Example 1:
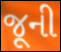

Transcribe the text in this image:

જૂની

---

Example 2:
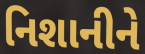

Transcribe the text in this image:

નિશાનીને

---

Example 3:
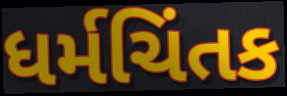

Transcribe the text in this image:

ધર્મચિંતક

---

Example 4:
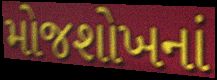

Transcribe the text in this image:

મોજશોખનાં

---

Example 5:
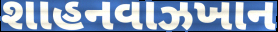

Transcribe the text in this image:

શાહનવાઝખાન